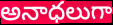
అనాధలుగా